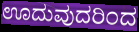
ಊದುವುದರಿಂದ